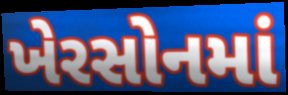
ખેરસોનમાં